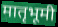
मातृभूमी